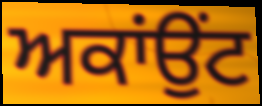
ਅਕਾਂਉਂਟ